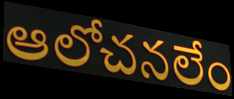
ఆలోచనలేం